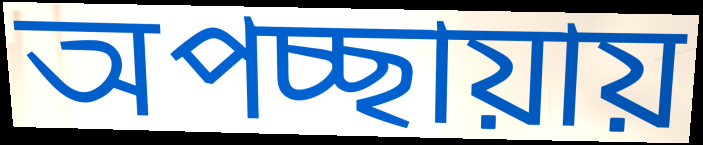
অপচ্ছায়ায়